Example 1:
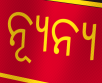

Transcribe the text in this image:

ନ୍ୟୂନ୍ୟ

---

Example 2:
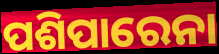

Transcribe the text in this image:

ପଶିପାରେନା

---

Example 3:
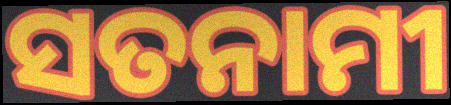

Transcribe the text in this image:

ସତନାମୀ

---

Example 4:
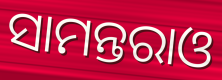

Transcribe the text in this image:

ସାମନ୍ତରାଓ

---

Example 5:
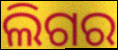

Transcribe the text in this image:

ଲିଗର